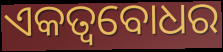
ଏକତ୍ୱବୋଧର